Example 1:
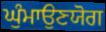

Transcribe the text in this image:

ਘੁੰਮਾਉਣਯੋਗ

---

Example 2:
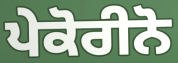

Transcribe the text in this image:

ਪੇਕੋਰੀਨੋ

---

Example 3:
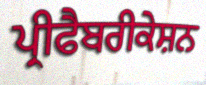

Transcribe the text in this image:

ਪ੍ਰੀਫੈਬਰੀਕੇਸ਼ਨ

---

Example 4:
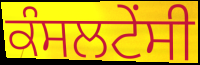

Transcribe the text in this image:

ਕੰਸਲਟੇਂਸੀ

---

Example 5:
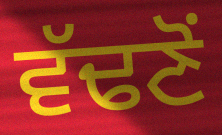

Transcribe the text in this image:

ਵੱਢਣੋਂ